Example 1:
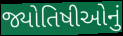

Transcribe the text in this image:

જ્યોતિષીઓનું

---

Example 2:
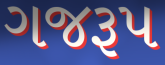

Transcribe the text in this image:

ગજરૂપ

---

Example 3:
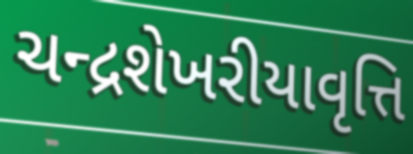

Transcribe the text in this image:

ચન્દ્રશેખરીયાવૃત્તિ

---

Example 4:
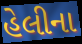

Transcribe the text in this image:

હેલીના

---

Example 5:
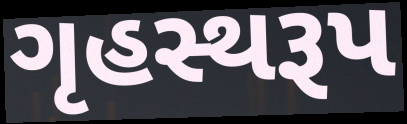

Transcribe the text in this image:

ગૃહસ્થરૂપ